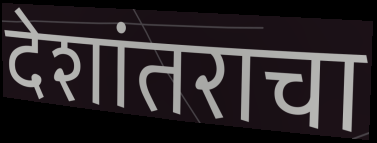
देशांतराचा